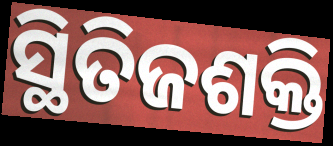
ସ୍ଥିତିଜଶକ୍ତି